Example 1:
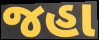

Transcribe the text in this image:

જહા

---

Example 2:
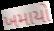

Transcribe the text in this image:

ખમાયો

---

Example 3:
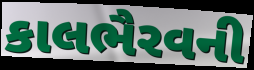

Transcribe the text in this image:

કાલભૈરવની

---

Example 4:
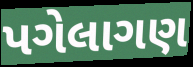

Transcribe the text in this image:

પગેલાગણ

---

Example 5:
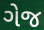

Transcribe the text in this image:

ગેજ